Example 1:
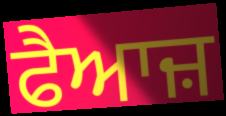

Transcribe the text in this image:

ਫੈਆਜ਼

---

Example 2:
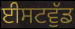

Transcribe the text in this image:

ਈਸਟਵੁੱਡ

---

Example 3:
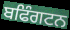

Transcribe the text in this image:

ਬਫਿੰਗਟਨ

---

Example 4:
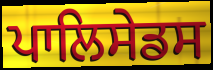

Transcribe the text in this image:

ਪਾਲਿਸੇਡਸ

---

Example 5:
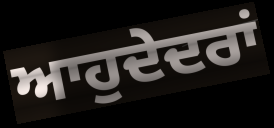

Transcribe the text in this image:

ਆਹੁਦੇਦਰਾਂ